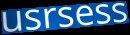
usrsess